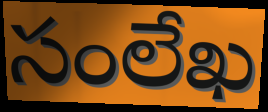
సంలేఖ